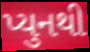
પ્યુનથી